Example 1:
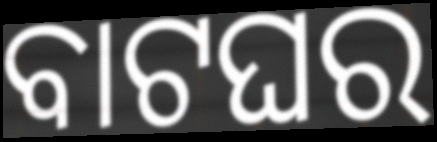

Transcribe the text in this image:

ବାଟଘର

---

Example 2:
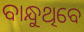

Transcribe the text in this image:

ବାନ୍ଧୁଥିବେ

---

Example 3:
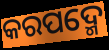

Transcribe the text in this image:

କରପଦ୍ମେ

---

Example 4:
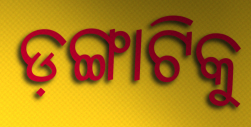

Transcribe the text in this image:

ଡ଼ଙ୍ଗାଟିକୁ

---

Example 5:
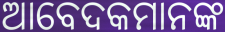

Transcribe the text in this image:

ଆବେଦକମାନଙ୍କ